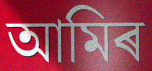
আমিৰ